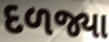
દળજ્યા